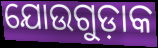
ଯୋଉଗୁଡ଼ାକ